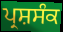
ਪ੍ਰਸ਼ਸੰਕ